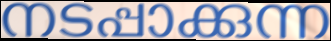
നടപ്പാക്കുന്ന